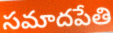
సమాదపేతి